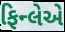
ફિન્લેએ